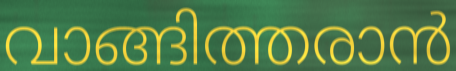
വാങ്ങിത്തരാൻ